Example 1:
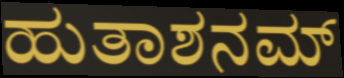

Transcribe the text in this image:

ಹುತಾಶನಮ್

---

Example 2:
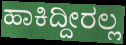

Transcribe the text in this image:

ಹಾಕಿದ್ದೀರಲ್ಲ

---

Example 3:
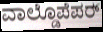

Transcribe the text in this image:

ವಾಲ್ಡೊಪೆಪರ್‍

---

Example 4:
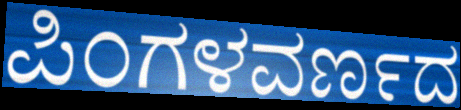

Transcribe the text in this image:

ಪಿಂಗಳವರ್ಣದ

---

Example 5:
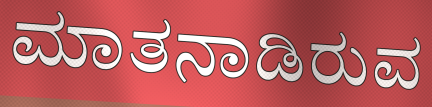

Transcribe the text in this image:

ಮಾತನಾಡಿರುವ